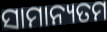
ସାମାନ୍ୟତମ